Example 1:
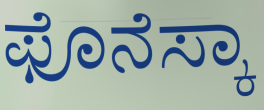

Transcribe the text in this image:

ಫೊನೆಸ್ಕಾ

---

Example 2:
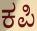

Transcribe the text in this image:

ಕಪಿ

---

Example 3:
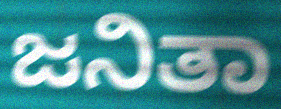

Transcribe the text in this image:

ಜನಿತಾ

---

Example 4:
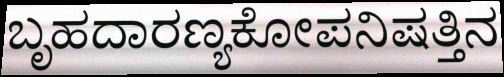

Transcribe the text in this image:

ಬೃಹದಾರಣ್ಯಕೋಪನಿಷತ್ತಿನ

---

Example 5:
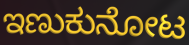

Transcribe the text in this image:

ಇಣುಕುನೋಟ